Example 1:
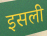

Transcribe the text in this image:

इसली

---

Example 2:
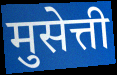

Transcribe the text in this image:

मुसेत्ती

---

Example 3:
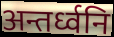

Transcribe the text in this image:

अन्तर्ध्वनि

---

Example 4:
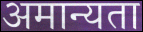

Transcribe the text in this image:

अमान्यता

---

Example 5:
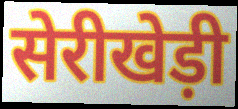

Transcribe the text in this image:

सेरीखेड़ी